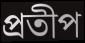
প্রতীপ